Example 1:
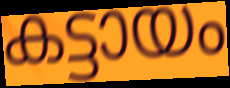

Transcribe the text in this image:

കട്ടായം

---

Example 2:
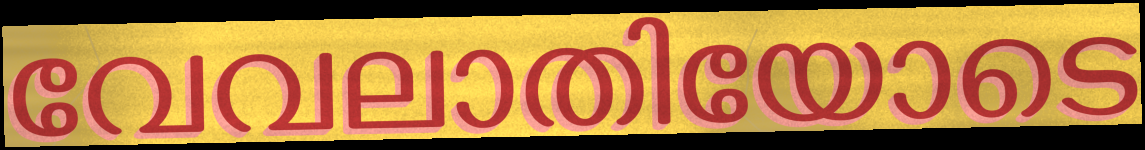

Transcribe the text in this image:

വേവലാതിയോടെ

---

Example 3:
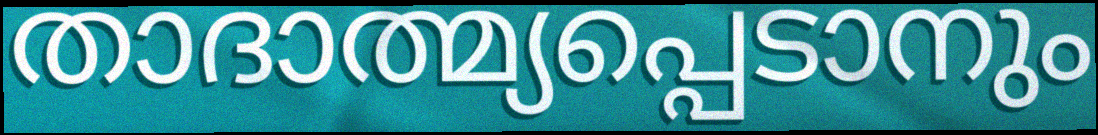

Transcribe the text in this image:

താദാത്മ്യപ്പെടാനും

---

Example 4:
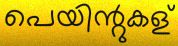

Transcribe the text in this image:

പെയിന്റുകള്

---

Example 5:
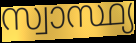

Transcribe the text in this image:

സ്വാസ്ഥ്യ